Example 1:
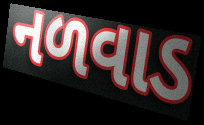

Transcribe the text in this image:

નળવાડ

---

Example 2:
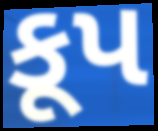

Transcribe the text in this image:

કૂપ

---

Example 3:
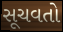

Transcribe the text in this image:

સૂચવતો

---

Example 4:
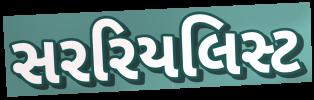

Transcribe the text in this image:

સરરિયલિસ્ટ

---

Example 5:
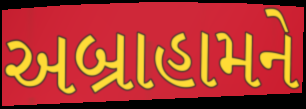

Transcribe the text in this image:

અબ્રાહામને